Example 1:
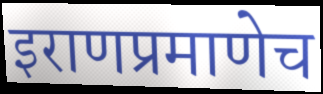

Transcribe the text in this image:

इराणप्रमाणेच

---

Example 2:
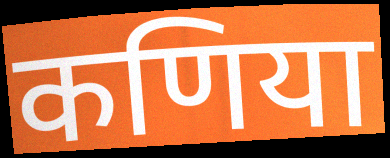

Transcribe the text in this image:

कणिया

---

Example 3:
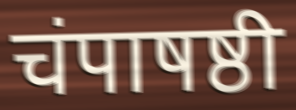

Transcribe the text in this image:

चंपाषष्ठी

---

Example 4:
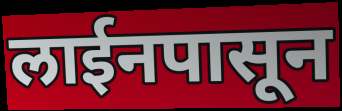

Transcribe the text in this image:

लाईनपासून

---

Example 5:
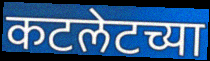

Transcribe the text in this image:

कटलेटच्या